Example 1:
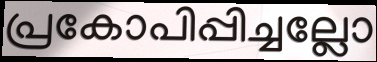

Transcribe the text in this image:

പ്രകോപിപ്പിച്ചല്ലോ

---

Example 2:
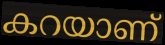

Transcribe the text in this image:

കറയാണ്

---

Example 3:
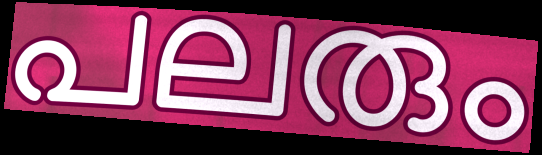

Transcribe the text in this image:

പലരും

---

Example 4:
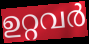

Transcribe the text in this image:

ഉറ്റവർ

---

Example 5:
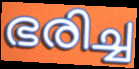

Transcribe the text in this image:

ഭരിച്ച